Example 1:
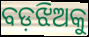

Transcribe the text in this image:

ବଡ଼ଝିଅକୁ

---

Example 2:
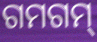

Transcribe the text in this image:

ଗମଗମ୍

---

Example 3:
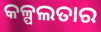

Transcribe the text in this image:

କଳ୍ପଲତାର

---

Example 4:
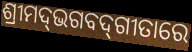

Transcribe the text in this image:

ଶ୍ରୀମଦ୍‌ଭଗବଦ୍‌ଗୀତାରେ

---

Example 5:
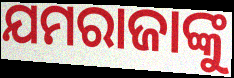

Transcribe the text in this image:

ଯମରାଜାଙ୍କୁ